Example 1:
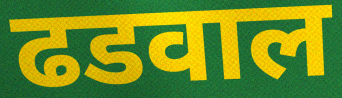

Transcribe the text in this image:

ढडवाल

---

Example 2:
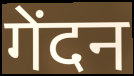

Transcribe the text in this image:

गेंदन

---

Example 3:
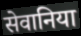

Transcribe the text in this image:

सेवानिया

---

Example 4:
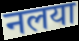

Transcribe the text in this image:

नलया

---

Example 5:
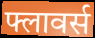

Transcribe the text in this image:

फ्लावर्स